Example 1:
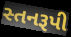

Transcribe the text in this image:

સ્તનરૂપી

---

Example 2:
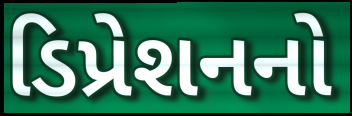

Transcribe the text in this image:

ડિપ્રેશનનો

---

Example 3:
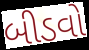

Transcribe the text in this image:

બીડવો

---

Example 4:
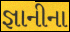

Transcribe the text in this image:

જ્ઞાનીના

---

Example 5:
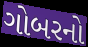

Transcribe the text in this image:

ગોબરનો